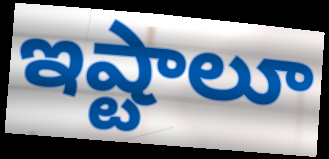
ఇష్టాలూ